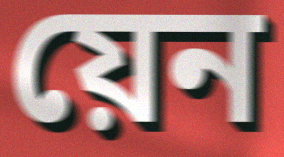
য়েন